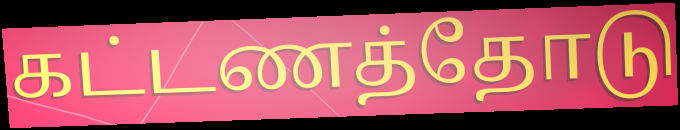
கட்டணத்தோடு